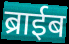
ब्राईब